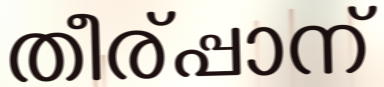
തീര്പ്പാന്